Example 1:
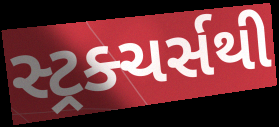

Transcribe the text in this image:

સ્ટ્રક્ચર્સથી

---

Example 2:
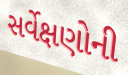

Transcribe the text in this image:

સર્વેક્ષણોની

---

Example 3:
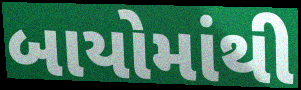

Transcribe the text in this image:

બાયોમાંથી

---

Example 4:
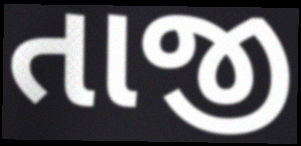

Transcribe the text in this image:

તાજી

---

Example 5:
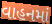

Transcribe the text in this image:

વાહનમાં